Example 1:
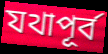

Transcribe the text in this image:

যথাপূর্ব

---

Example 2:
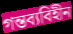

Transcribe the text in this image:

গন্তব্যবিহীন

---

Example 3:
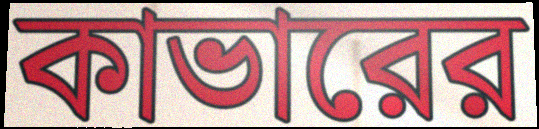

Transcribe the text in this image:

কাভারের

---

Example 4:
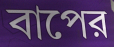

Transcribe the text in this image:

বাপের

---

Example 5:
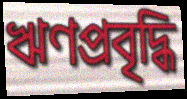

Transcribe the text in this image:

ঋণপ্রবৃদ্ধি